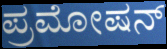
ಪ್ರಮೋಷನ್